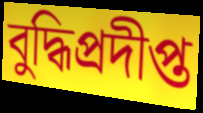
বুদ্ধিপ্রদীপ্ত